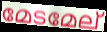
മേടമേല്